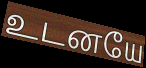
உடனயே